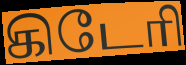
கிடேரி